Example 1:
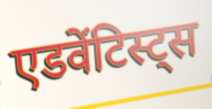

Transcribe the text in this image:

एडवेंटिस्ट्स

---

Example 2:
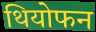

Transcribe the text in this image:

थियोफन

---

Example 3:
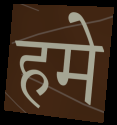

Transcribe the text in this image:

हमे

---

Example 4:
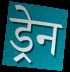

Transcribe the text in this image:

ड्रेन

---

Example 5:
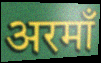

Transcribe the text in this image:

अरमाँ